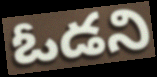
ఓడని